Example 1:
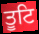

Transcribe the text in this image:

ਤੂਟਿ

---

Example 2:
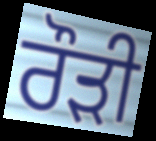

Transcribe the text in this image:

ਰੌੜੀ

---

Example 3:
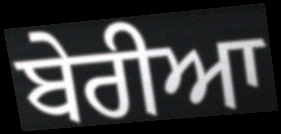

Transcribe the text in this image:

ਬੇਰੀਆ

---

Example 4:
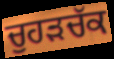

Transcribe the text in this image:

ਚੁਹੜਚੱਕ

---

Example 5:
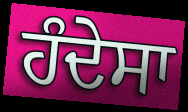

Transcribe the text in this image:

ਹੰਦੇਸਾ